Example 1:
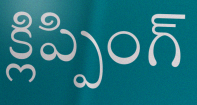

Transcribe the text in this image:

క్లిప్పింగ్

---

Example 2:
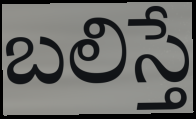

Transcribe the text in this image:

బలిస్తే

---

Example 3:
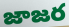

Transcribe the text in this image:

జాజర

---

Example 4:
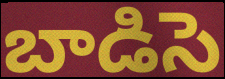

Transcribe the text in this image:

బాడిసె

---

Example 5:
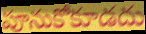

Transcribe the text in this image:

పూనుకోకూడదు